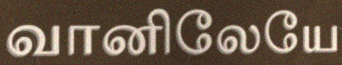
வானிலேயே